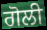
ਗੋਲੀ